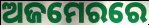
ଅଜମେରରେ